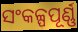
ସଂକଳ୍ପପୂର୍ଣ୍ଣ